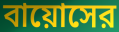
বায়োসের